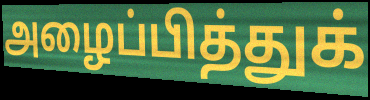
அழைப்பித்துக்